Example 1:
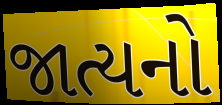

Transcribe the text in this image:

જાત્યનો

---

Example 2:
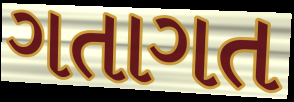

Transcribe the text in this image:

ગતાગત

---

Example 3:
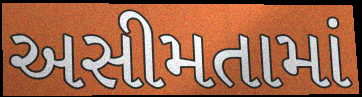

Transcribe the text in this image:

અસીમતામાં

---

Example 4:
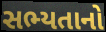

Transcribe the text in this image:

સભ્યતાનો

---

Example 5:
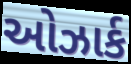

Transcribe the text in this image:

ઓઝાર્ક